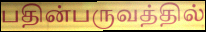
பதின்பருவத்தில்